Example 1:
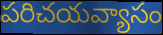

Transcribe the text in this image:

పరిచయవ్యాసం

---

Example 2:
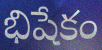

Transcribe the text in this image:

భిషేకం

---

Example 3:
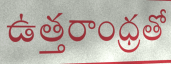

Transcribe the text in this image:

ఉత్తరాంధ్రతో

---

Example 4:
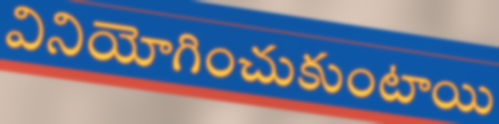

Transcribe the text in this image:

వినియోగించుకుంటాయి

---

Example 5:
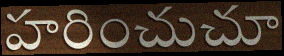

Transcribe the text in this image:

హరించుచూ